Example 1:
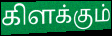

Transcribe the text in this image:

கிளக்கும்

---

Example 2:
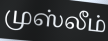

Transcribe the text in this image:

முஸ்லீம்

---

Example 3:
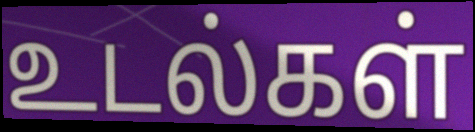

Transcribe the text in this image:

உடல்கள்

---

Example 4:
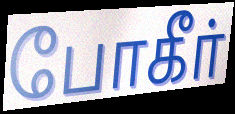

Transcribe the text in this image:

போகீர்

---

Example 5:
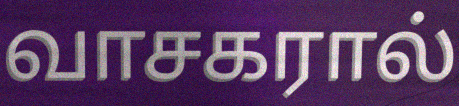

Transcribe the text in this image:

வாசகரால்